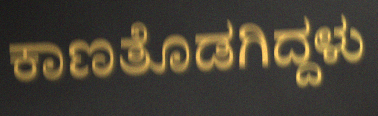
ಕಾಣತೊಡಗಿದ್ದಳು